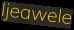
Ijeawele